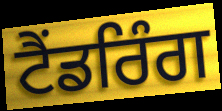
ਟੈਂਡਰਿੰਗ